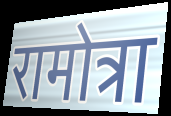
रामोत्रा